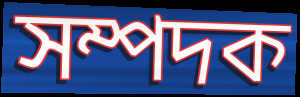
সম্পদক